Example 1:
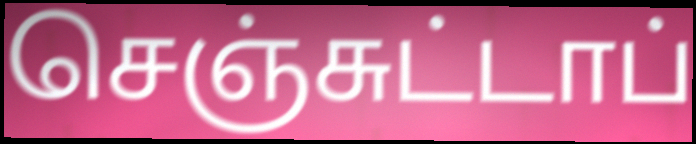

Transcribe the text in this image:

செஞ்சுட்டாப்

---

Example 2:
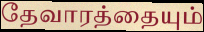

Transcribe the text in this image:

தேவாரத்தையும்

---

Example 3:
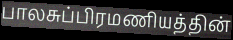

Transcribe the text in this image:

பாலசுப்பிரமணியத்தின்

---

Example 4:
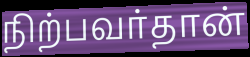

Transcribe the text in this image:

நிற்பவர்தான்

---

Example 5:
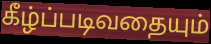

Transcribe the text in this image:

கீழ்ப்படிவதையும்